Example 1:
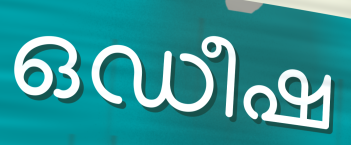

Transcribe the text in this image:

ഒഡീഷ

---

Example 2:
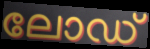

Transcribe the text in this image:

ലോഡ്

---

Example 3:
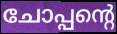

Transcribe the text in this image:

ചോപ്പന്റെ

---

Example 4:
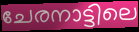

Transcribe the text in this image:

ചേരനാട്ടിലെ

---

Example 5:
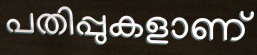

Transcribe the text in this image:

പതിപ്പുകളാണ്